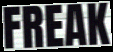
FREAK